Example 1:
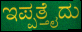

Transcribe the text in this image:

ಇಪ್ಪತ್ತೈದು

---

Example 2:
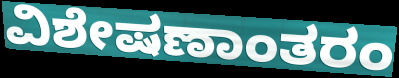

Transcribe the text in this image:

ವಿಶೇಷಣಾಂತರಂ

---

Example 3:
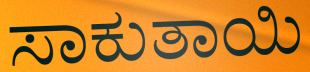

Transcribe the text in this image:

ಸಾಕುತಾಯಿ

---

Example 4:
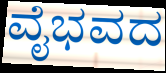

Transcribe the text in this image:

ವೈಭವದ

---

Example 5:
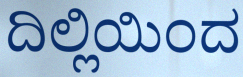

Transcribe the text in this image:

ದಿಲ್ಲಿಯಿಂದ